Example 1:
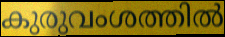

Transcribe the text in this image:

കുരുവംശത്തിൽ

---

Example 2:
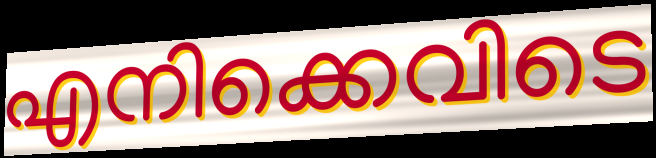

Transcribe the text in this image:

എനിക്കെവിടെ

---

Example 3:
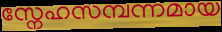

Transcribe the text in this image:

സ്നേഹസമ്പന്നമായ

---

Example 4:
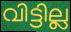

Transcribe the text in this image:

വിട്ടില്ല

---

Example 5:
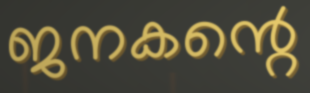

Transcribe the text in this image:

ജനകന്റെ